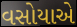
વસોયાએ